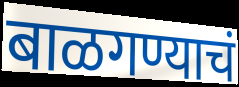
बाळगण्याचं